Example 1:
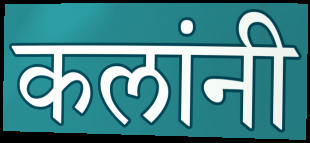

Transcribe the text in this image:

कलांनी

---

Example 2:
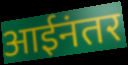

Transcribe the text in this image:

आईनंतर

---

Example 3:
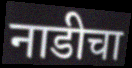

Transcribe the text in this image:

नाडीचा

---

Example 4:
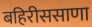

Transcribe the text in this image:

बहिरीससाणा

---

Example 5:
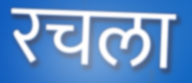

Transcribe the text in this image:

रचला